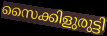
സൈക്കിളുരുട്ടി